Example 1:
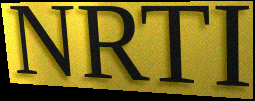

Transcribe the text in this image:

NRTI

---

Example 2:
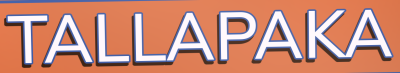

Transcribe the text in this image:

TALLAPAKA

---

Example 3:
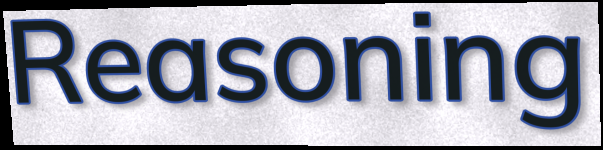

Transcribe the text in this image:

Reasoning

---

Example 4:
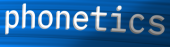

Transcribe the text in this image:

phonetics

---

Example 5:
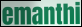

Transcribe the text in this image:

emanthi